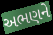
અભણને